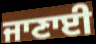
ਜਾਣਾਈ